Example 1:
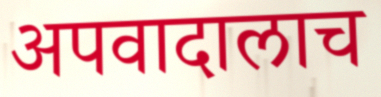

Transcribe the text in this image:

अपवादालाच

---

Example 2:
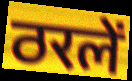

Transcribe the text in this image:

ठरलें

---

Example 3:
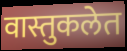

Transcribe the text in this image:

वास्तुकलेत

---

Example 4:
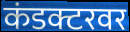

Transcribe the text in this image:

कंडक्टरवर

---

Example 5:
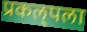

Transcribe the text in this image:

प्रकल्पला